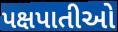
પક્ષપાતીઓ